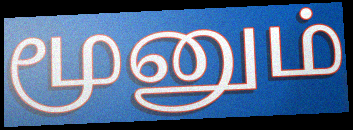
மூனும்